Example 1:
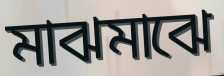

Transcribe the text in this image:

মাঝমাঝে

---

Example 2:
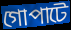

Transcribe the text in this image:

গোপাটে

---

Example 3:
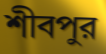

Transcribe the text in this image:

শীবপুর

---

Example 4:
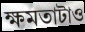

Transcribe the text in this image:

ক্ষমতাটাও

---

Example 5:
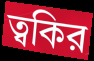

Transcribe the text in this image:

ত্বকির